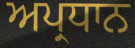
ਅਪ੍ਰਧਾਨ